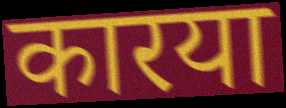
कारया